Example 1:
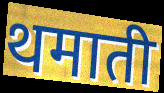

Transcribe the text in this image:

थमाती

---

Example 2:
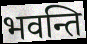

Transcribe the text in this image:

भवन्ति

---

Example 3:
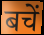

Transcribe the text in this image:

बचें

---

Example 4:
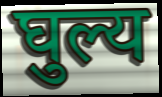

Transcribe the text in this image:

घुल्य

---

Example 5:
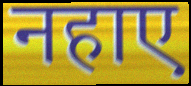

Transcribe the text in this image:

नहाए